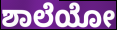
ಶಾಲೆಯೋ